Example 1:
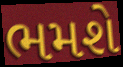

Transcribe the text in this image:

ભમશે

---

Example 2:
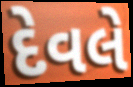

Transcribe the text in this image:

દેવલે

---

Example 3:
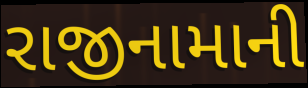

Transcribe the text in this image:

રાજીનામાની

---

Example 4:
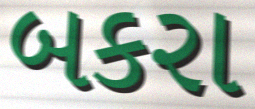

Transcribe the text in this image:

બકરા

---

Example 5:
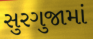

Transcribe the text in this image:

સુરગુજામાં